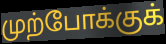
முற்போக்குக்